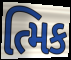
ત્મિક